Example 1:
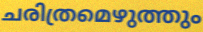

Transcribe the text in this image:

ചരിത്രമെഴുത്തും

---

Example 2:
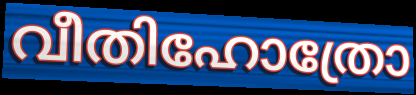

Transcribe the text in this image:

വീതിഹോത്രോ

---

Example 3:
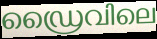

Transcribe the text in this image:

ഡ്രൈവിലെ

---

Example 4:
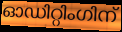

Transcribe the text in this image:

ഓഡിറ്റിംഗിന്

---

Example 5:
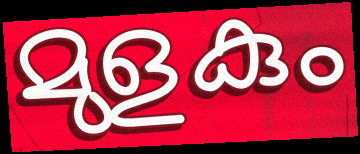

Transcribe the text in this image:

മുളകും